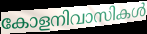
കോളനിവാസികൾ